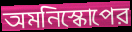
অমনিস্কোপের